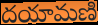
దయామణి